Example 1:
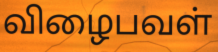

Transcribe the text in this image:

விழைபவள்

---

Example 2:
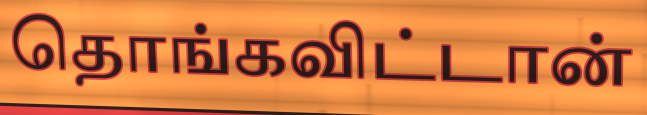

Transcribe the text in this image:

தொங்கவிட்டான்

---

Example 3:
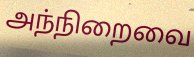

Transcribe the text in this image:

அந்நிறைவை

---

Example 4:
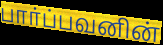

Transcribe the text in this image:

பார்ப்பவனின்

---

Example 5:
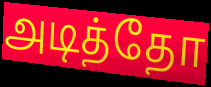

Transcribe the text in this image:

அடித்தோ